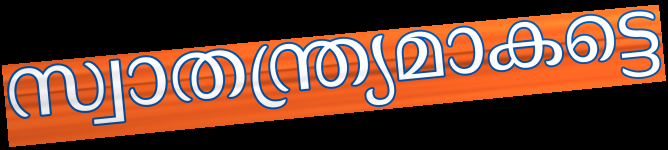
സ്വാതന്ത്ര്യമാകട്ടെ